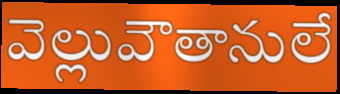
వెల్లువౌతానులే